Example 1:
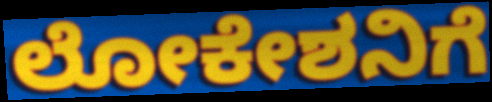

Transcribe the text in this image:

ಲೋಕೇಶನಿಗೆ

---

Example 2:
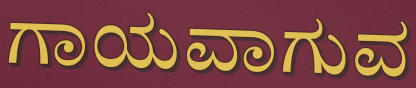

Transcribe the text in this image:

ಗಾಯವಾಗುವ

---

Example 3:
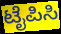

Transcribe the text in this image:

ಟೈಪಿಸಿ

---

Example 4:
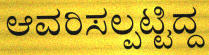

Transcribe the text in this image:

ಆವರಿಸಲ್ಪಟ್ಟಿದ್ದ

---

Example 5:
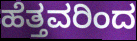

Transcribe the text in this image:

ಹೆತ್ತವರಿಂದ